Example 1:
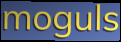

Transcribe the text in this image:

moguls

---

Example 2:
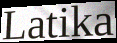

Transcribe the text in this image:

Latika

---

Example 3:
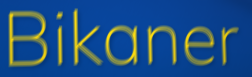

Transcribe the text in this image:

Bikaner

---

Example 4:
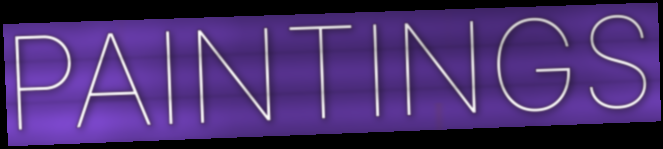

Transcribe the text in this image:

PAINTINGS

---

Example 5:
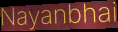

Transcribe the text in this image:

Nayanbhai